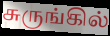
சுருங்கில்